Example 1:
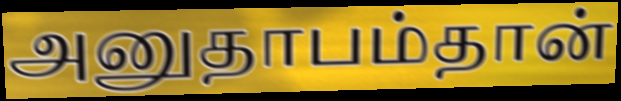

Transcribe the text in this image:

அனுதாபம்தான்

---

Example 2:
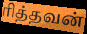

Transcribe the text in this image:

ரித்தவன்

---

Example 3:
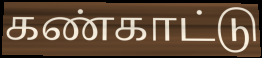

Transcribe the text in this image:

கண்காட்டு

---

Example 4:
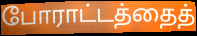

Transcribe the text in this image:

போராட்டத்தைத்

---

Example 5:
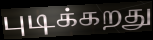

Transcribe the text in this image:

புடிக்கறது